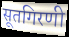
सूतगिरणी